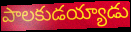
పాలకుడయ్యాడు